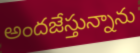
అందజేస్తున్నాను